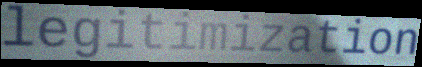
legitimization